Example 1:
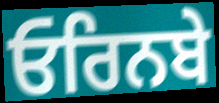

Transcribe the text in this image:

ਓਰਿਨਬੇ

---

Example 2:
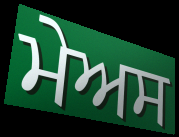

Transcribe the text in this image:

ਮੇਅਸ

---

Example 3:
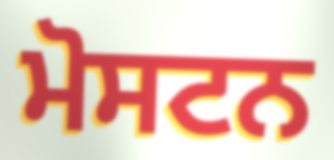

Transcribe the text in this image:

ਮੋਸਟਨ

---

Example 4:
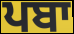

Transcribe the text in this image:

ਪਬਾ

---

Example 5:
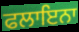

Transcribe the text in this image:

ਫਲਾਇਨਾ